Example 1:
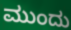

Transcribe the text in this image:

ಮುಂದು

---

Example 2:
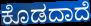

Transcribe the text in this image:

ಕೊಡದಾದೆ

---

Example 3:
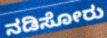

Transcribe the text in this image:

ನಡಿಸೋರು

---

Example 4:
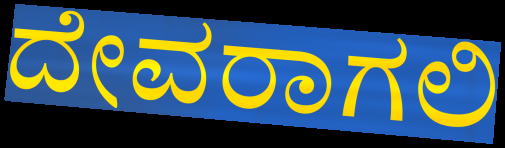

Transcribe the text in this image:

ದೇವರಾಗಲಿ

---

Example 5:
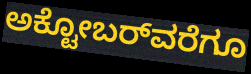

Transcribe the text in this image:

ಅಕ್ಟೋಬರ್‌ವರೆಗೂ